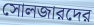
সোলজারদের